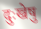
दुःखेषु